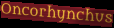
Oncorhynchus